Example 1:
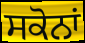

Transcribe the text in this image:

ਸਕੋਨਾਂ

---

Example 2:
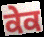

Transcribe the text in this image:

ਕੇਕ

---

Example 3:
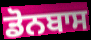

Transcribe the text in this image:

ਡੋਨਬਾਸ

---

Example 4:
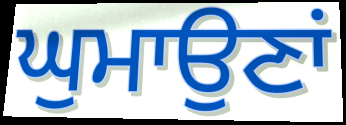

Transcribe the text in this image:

ਘੁਮਾਉਣਾਂ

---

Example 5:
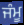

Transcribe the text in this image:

ਜੰਮੂ